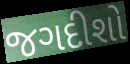
જગદીશો